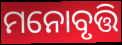
ମନୋବୃତ୍ତି